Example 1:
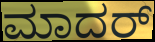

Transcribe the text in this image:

ಮಾದರ್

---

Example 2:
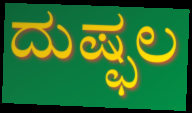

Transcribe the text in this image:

ದುಷ್ಫಲ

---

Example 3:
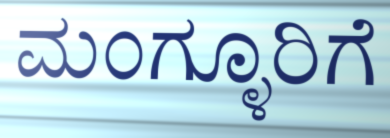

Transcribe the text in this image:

ಮಂಗ್ಳೂರಿಗೆ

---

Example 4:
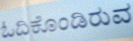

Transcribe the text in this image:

ಓದಿಕೊಂಡಿರುವ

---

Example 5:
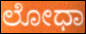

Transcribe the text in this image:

ಲೋಧಾ